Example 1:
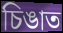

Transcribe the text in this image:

চিঙাত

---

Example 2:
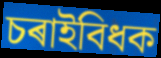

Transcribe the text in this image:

চৰাইবিধক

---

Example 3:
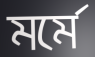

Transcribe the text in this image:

মৰ্মে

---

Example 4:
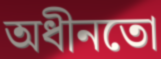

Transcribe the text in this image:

অধীনতো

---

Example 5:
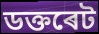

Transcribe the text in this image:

ডক্তৰেট